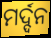
ମର୍ଦ୍ଦନ